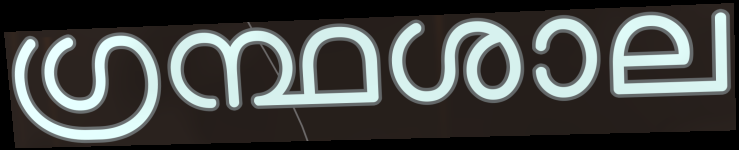
ഗ്രന്ഥശാല